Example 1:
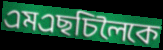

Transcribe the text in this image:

এমএছচিলৈকে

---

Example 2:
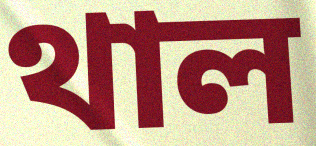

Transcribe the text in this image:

থাল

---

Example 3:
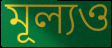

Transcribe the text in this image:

মূল্যও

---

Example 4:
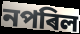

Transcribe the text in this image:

নপৰিল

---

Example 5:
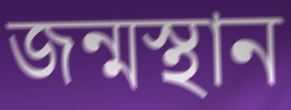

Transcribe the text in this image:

জন্মস্থান